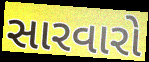
સારવારો